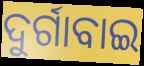
ଦୁର୍ଗାବାଇ